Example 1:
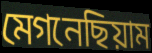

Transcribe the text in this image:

মেগনেছিয়াম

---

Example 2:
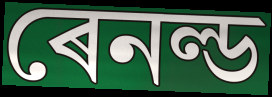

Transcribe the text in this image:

ৰেনল্ড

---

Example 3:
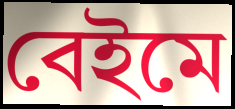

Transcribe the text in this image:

বেইমে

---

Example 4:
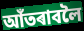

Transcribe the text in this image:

আঁতৰাবলৈ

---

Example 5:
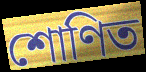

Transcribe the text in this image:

শোণিত